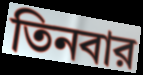
তিনবার